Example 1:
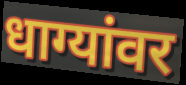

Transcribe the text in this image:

धाग्यांवर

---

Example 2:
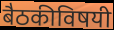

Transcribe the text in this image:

बैठकीविषयी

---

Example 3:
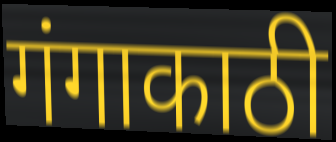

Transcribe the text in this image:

गंगाकाठी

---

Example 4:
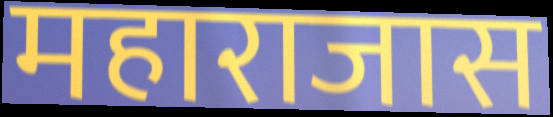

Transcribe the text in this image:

महाराजास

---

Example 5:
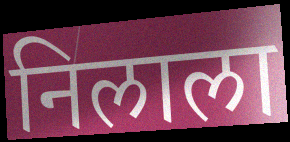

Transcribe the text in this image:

निलाला